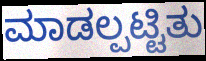
ಮಾಡಲ್ಪಟ್ಟಿತು